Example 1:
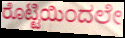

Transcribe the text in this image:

ರೊಟ್ಟಿಯಿಂದಲೇ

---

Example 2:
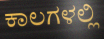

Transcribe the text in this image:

ಕಾಲಗಳಲ್ಲಿ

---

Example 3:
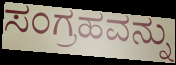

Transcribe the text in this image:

ಸಂಗ್ರಹವನ್ನು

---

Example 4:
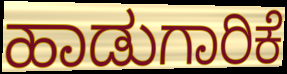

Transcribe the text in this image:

ಹಾಡುಗಾರಿಕೆ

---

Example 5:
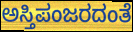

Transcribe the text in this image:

ಅಸ್ತಿಪಂಜರದಂತೆ